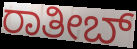
ರಾತೀಬ್